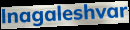
Inagaleshvar